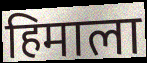
हिमाला